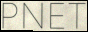
PNET